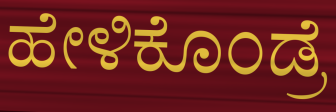
ಹೇಳಿಕೊಂಡ್ರೆ